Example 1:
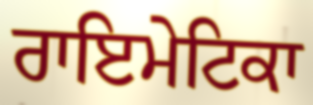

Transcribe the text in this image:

ਰਾਇਮੇਟਿਕਾ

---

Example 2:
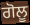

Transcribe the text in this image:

ਗੋਲੂ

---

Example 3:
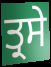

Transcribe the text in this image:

ਤ੍ਰਸੇ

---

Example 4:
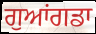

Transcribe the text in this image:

ਗੁਆਂਗਡਾ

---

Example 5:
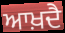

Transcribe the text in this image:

ਆਖ਼ਦੈ